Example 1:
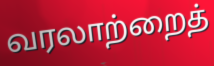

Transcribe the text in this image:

வரலாற்றைத்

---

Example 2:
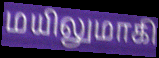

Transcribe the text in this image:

மயிலுமாகி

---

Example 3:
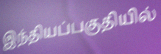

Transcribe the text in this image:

இந்தியப்பகுதியில்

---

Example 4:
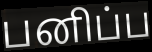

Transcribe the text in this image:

பனிப்ப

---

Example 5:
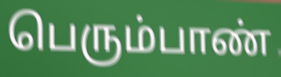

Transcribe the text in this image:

பெரும்பாண்